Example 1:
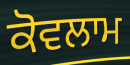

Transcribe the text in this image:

ਕੋਵਲਾਮ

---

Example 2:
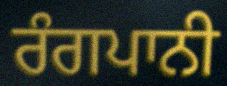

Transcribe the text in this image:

ਰੰਗਪਾਨੀ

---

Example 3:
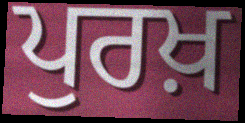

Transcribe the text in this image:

ਪੁਰਖ਼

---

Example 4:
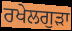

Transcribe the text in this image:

ਰਖੇਲਗੁੜਾ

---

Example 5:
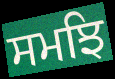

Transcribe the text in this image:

ਸਮਝਿ